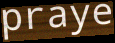
praye